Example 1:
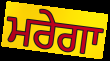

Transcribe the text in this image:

ਮਰੇਗਾ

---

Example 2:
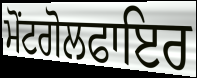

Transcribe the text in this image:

ਮੋਂਟਗੋਲਫਾਇਰ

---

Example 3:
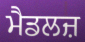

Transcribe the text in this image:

ਮੈਡਲਜ਼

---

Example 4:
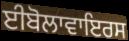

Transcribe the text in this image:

ਈਬੋਲਾਵਾਇਰਸ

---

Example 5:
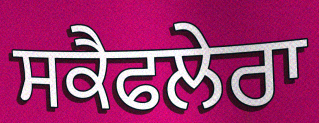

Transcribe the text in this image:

ਸਕੈਫਲੇਰਾ